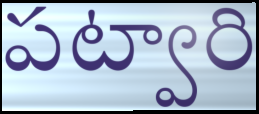
పట్వారి